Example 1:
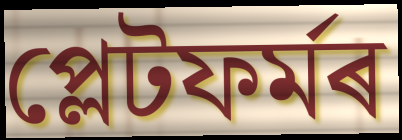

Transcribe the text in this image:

প্লেটফৰ্মৰ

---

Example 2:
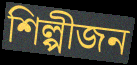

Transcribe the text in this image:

শিল্পীজন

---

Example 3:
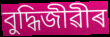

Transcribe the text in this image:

বুদ্ধিজীৱীৰ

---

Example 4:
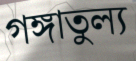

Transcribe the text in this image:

গঙ্গাতুল্য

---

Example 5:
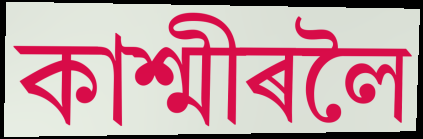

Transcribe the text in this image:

কাশ্মীৰলৈ